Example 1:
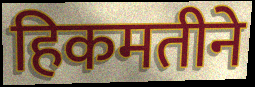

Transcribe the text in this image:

हिकमतीने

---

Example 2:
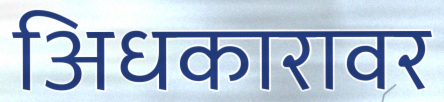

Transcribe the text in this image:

अिधकारावर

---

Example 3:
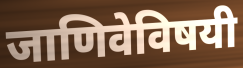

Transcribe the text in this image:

जाणिवेविषयी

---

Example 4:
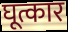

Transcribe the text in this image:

घूत्कार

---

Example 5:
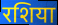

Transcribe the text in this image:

रशिया